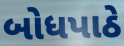
બોધપાઠે